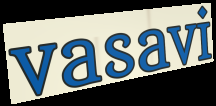
vasavi